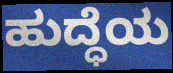
ಹುದ್ಧೆಯ